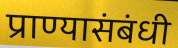
प्राण्यासंबंधी